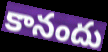
కానందు